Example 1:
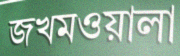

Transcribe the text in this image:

জখমওয়ালা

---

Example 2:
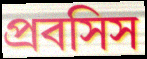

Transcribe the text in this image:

প্রবসিস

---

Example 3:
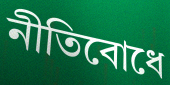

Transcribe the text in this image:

নীতিবোধে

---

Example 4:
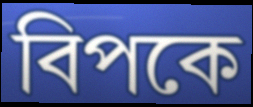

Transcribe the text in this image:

বিপকে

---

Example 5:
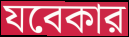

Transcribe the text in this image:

যবেকার